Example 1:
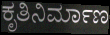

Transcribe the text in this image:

ಕೃತಿನಿರ್ಮಾಣ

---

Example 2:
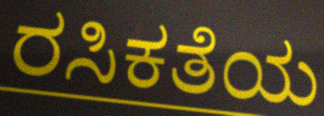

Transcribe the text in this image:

ರಸಿಕತೆಯ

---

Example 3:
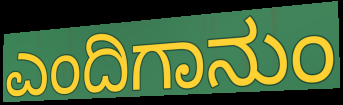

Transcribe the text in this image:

ಎಂದಿಗಾನುಂ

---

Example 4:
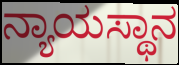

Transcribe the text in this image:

ನ್ಯಾಯಸ್ಥಾನ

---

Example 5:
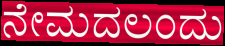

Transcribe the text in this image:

ನೇಮದಲಂದು